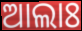
ଆଲାଃ